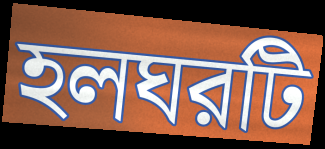
হলঘরটি